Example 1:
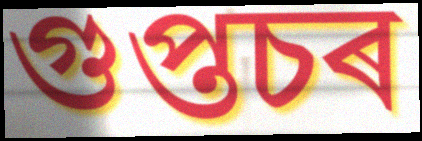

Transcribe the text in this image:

গুপ্তচৰ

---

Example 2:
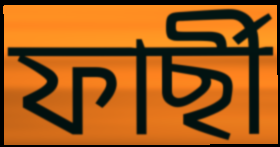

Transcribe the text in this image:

ফাৰ্ছী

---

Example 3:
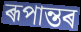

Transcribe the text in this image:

ৰূপান্তৰ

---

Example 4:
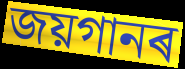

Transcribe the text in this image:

জয়গানৰ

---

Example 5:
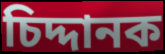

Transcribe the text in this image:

চিদ্দানক